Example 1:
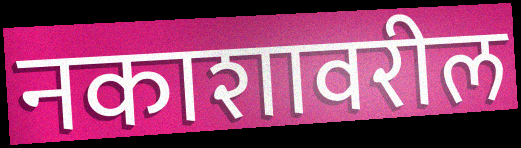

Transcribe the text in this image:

नकाशावरील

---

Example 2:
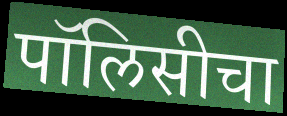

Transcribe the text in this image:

पॉलिसीचा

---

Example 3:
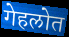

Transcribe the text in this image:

गेहलोत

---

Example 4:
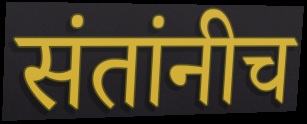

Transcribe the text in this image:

संतांनीच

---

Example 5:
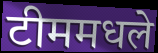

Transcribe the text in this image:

टीममधले